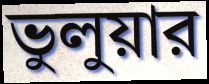
ভুলুয়ার